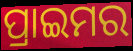
ପ୍ରାଇମର